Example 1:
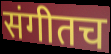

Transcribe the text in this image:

संगीतच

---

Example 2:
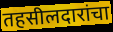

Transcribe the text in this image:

तहसीलदारांचा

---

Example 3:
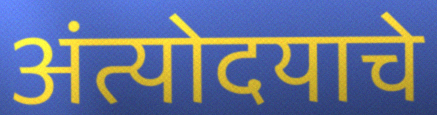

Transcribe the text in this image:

अंत्योदयाचे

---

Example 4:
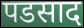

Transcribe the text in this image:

पडसाद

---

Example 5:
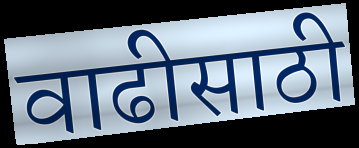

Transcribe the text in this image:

वाढीसाठी